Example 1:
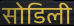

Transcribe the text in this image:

सोडिली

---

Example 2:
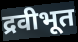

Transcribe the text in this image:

द्रवीभूत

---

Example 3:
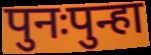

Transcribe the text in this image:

पुनःपुन्हा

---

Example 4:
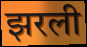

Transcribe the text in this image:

झरली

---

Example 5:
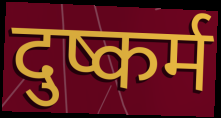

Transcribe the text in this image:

दुष्कर्म